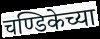
चण्डिकेच्या